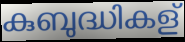
കുബുദ്ധികള്